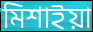
মিশাইয়া